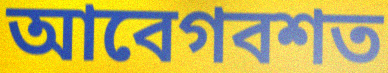
আবেগবশত